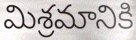
మిశ్రమానికి